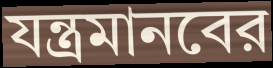
যন্ত্রমানবের